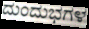
ದುಂದುಭಗಳ